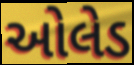
ઓલેડ